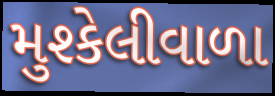
મુશ્કેલીવાળા